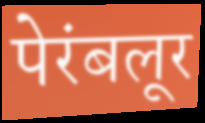
पेरंबलूर